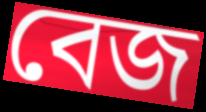
বেজ